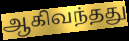
ஆகிவந்தது